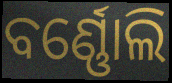
ବର୍ଣ୍ଣୋଲି